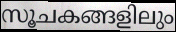
സൂചകങ്ങളിലും